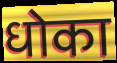
धोका